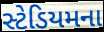
સ્ટેડિયમના